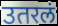
उतरलं